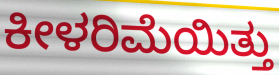
ಕೀಳರಿಮೆಯಿತ್ತು